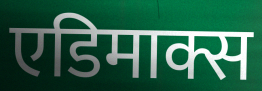
एडिमाक्स